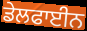
ਡੇਲਫਾਈਨ